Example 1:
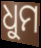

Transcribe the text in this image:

ଧୁମ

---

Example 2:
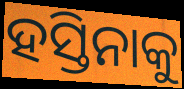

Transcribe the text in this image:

ହସ୍ତିନାକୁ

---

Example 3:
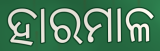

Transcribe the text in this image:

ହାରମାଳ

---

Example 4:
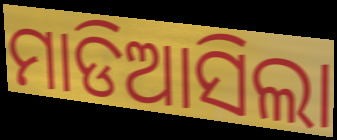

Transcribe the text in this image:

ମାଡିଆସିଲା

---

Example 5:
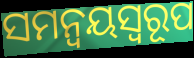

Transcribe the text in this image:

ସମନ୍ୱୟସ୍ୱରୂପ